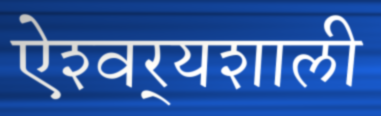
ऐश्वर्यशाली